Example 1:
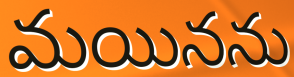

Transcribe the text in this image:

మయినను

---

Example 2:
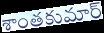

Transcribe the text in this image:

శాంతకుమార్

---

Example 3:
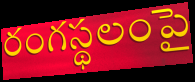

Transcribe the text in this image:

రంగస్థలంపై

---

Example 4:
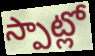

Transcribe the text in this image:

స్పాట్లో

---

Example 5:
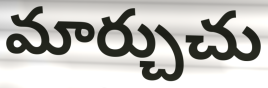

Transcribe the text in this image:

మార్చుచు